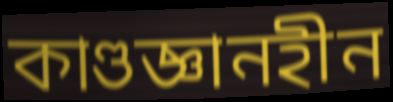
কাণ্ডজ্ঞানহীন